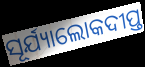
ସୂର୍ଯ୍ୟାଲୋକଦୀପ୍ତ